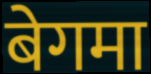
बेगमा